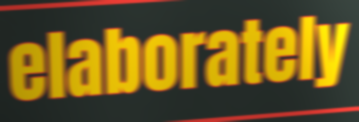
elaborately